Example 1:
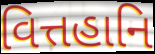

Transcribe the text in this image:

વિત્તહાનિ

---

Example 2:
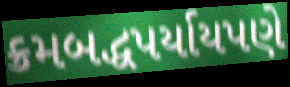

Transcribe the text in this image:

ક્રમબદ્ધપર્યાયપણે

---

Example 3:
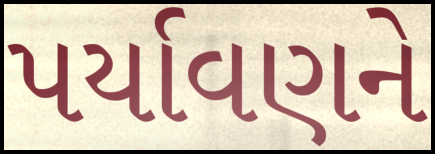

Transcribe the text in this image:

પર્યાવણને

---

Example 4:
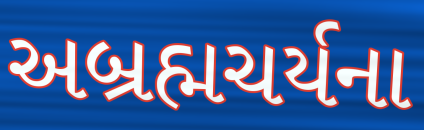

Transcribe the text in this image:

અબ્રહ્મચર્યના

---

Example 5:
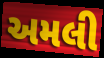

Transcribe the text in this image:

અમલી